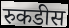
रुकडीस